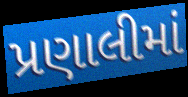
પ્રણાલીમાં